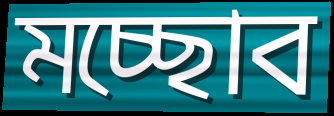
মচ্ছোব